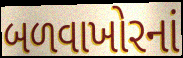
બળવાખોરનાં